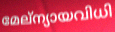
മേല്ന്യായവിധി